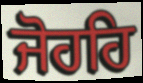
ਜੋਹਹਿ